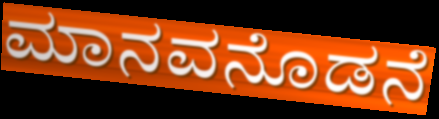
ಮಾನವನೊಡನೆ